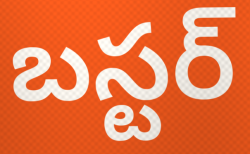
బస్టర్